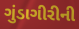
ગુંડાગીરીની